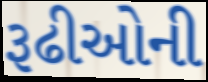
રૂઢીઓની